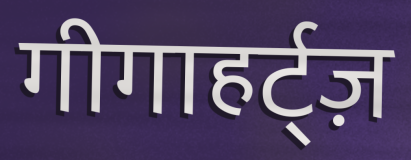
गीगाहर्ट्ज़